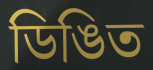
ডিঙিত